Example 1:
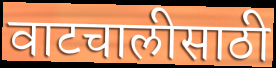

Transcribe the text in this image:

वाटचालीसाठी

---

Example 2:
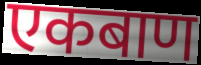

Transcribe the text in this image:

एकबाण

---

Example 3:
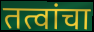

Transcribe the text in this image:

तत्वांचा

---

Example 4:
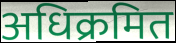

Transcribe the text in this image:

अधिक्रमित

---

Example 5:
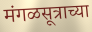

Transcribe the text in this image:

मंगळसूत्राच्या